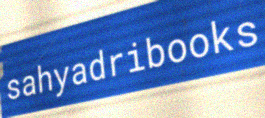
sahyadribooks